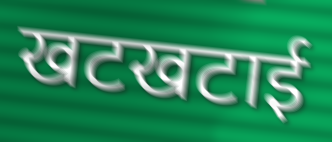
खटखटाई